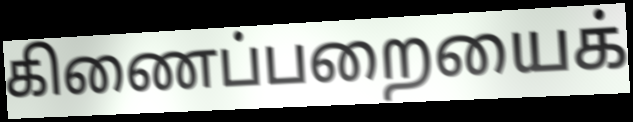
கிணைப்பறையைக்